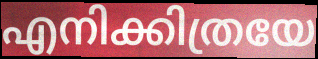
എനിക്കിത്രയേ